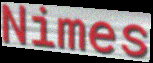
Nimes